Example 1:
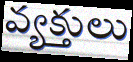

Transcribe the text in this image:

వ్యక్తులు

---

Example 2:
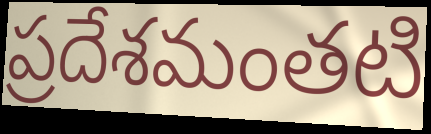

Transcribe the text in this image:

ప్రదేశమంతటి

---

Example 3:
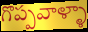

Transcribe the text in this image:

గొప్పవాళ్ళా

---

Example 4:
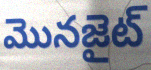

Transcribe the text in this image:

మొనజైట్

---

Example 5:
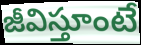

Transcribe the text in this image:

జీవిస్తూంటే